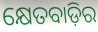
କ୍ଷେତବାଡ଼ିର